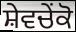
ਸ਼ੇਵਚੇਂਕੋ